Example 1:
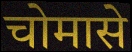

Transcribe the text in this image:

चोमासे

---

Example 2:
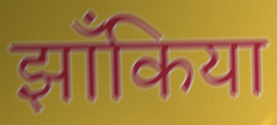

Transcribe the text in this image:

झाँकिया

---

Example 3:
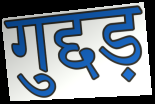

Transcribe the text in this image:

गुद्दड़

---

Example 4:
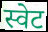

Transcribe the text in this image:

स्वेट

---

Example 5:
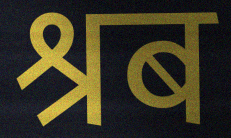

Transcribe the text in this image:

श्रब